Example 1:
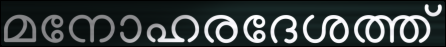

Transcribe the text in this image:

മനോഹരദേശത്ത്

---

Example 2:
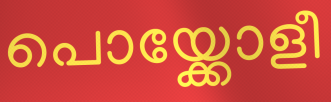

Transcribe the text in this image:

പൊയ്ക്കോളീ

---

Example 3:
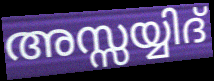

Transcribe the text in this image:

അസ്സയ്യിദ്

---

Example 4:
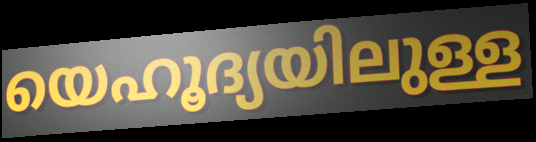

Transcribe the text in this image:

യെഹൂദ്യയിലുള്ള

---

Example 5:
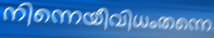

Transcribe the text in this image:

നിന്നെയീവിധംതന്നെ